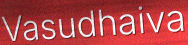
Vasudhaiva